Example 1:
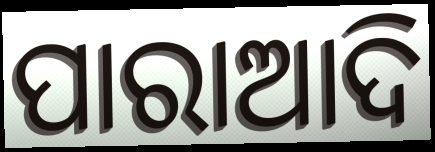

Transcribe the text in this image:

ପାରାଆଦି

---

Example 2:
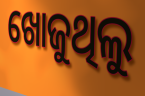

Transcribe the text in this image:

ଖୋଜୁଥିଲୁ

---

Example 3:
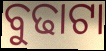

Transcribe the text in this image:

ବୁଢାଟା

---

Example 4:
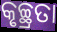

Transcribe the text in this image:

କୃଚ୍ଛ୍ରତା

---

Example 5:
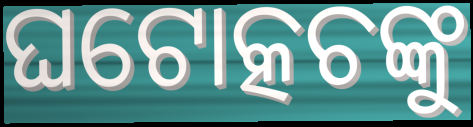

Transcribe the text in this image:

ଘଟୋତ୍କଚଙ୍କୁ